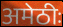
अमेठीः